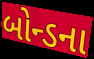
બોન્ડના